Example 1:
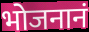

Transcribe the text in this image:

भोजनानं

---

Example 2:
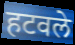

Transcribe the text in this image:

हटवले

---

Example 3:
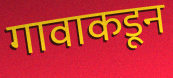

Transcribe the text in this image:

गावाकडून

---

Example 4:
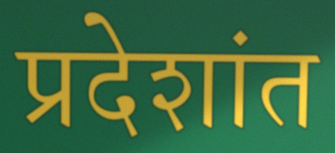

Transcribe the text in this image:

प्रदेशांत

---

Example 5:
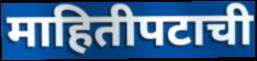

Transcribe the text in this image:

माहितीपटाची